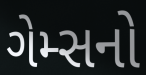
ગેમ્સનો